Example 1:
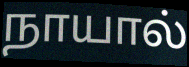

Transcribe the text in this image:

நாயால்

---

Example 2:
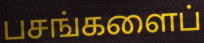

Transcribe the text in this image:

பசங்களைப்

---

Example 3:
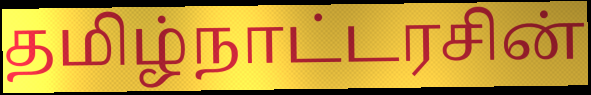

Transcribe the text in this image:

தமிழ்நாட்டரசின்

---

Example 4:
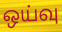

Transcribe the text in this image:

ஒய்வு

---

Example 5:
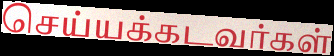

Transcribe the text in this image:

செய்யக்கடவர்கள்